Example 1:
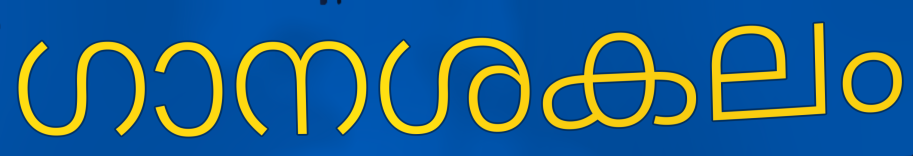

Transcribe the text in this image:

ഗാനശകലം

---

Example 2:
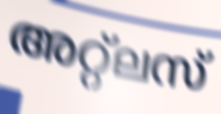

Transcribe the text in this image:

അറ്റ്ലസ്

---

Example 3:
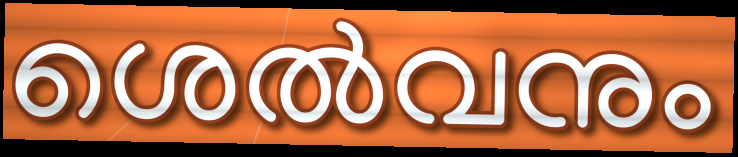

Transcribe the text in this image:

ശെൽവനും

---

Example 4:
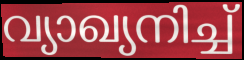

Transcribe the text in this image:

വ്യാഖ്യനിച്ച്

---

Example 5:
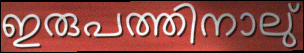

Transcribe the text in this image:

ഇരുപത്തിനാലു്